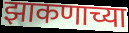
झाकणाच्या